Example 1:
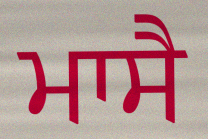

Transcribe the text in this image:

ਮਾਸੈ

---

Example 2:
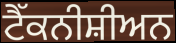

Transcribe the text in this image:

ਟੈੱਕਨੀਸ਼ੀਅਨ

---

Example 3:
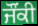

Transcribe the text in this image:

ਜੌਂਕੀ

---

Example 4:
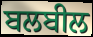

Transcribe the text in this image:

ਬਲਬੀਲ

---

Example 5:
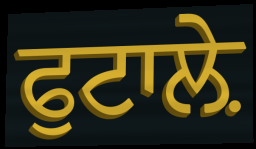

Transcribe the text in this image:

ਫੁਟਾਲ਼ੇ